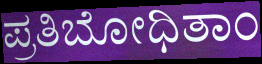
ಪ್ರತಿಬೋಧಿತಾಂ